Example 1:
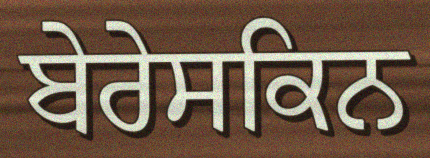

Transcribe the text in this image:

ਬੇਰੇਸਕਿਨ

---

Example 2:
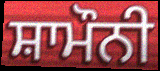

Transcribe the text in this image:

ਸ਼ਾਮੌਨੀ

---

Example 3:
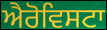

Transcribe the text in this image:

ਐਰੋਵਿਸਟਾ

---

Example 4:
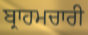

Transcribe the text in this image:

ਬ੍ਰਾਹਮਚਾਰੀ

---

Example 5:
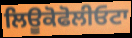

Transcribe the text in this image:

ਲਿਊਕੋਫੋਲੀਓਟਾ